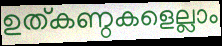
ഉത്കണ്ഠകളെല്ലാം